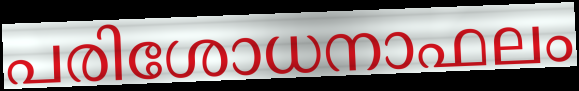
പരിശോധനാഫലം